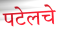
पटेलचे